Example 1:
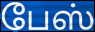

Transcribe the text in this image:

பேஸ்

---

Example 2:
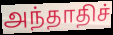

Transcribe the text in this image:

அந்தாதிச்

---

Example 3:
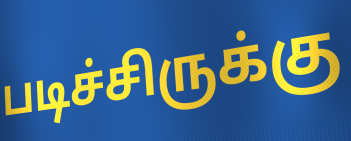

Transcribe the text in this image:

படிச்சிருக்கு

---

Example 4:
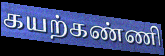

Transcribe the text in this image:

கயற்கண்ணி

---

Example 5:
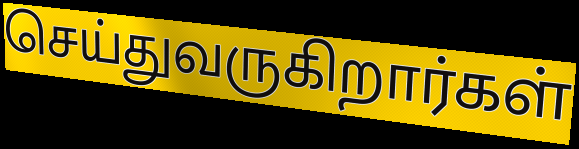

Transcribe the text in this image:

செய்துவருகிறார்கள்